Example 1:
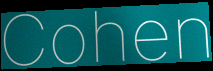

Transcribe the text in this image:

Cohen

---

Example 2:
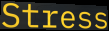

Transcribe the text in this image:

Stress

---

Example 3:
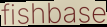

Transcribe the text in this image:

fishbase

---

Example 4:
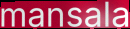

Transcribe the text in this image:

mansala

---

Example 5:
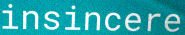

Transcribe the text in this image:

insincere